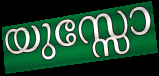
യുസ്സോ